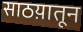
साठय़ातून